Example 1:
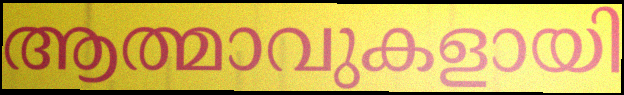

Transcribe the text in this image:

ആത്മാവുകളായി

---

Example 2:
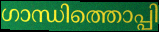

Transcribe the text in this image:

ഗാന്ധിത്തൊപ്പി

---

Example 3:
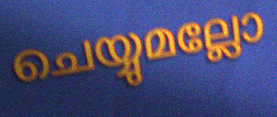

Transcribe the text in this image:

ചെയ്യുമല്ലോ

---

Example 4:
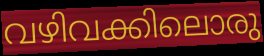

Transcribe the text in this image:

വഴിവക്കിലൊരു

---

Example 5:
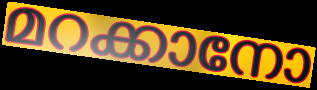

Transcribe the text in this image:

മറക്കാനോ